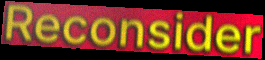
Reconsider